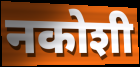
नकोशी